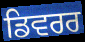
ਡਿਵਰਰ